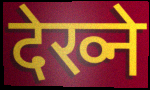
देख्ने